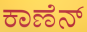
ಕಾಣೆನ್